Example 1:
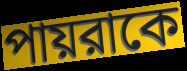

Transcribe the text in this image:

পায়রাকে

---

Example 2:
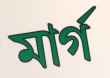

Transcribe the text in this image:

মার্গ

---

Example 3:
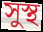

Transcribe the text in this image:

সুস্থ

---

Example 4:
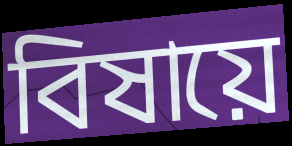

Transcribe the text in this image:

বিষায়ে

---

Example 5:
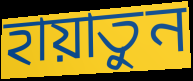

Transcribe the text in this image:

হায়াতুন